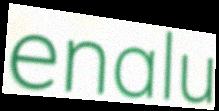
enalu